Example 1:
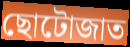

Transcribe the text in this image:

ছোটোজাত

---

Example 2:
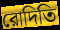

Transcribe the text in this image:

রোদিতি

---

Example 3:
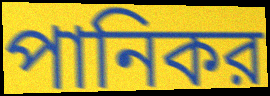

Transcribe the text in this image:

পানিকর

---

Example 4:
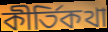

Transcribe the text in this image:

কীর্তিকথা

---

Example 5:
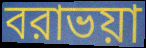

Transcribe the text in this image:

বরাভয়া